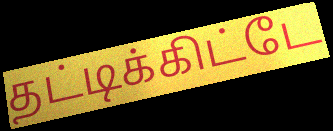
தட்டிக்கிட்டே